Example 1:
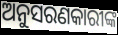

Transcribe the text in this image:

ଅନୁସରଣକାରୀଙ୍କ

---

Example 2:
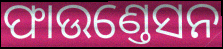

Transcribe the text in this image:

ଫାଉଣ୍ତେସନ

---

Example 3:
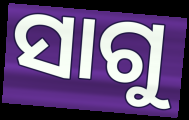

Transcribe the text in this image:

ସାଗୁ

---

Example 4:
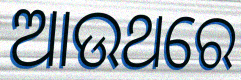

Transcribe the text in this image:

ଆଉଥରେ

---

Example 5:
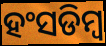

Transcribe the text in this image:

ହଂସଡିମ୍ବ